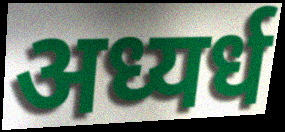
अध्यर्ध